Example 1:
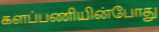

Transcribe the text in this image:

களப்பணியின்போது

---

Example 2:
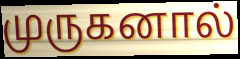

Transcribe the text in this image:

முருகனால்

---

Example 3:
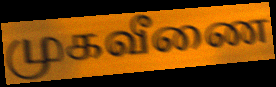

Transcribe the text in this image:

முகவீணை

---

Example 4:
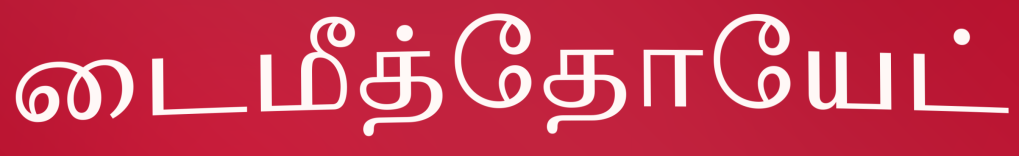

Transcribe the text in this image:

டைமீத்தோயேட்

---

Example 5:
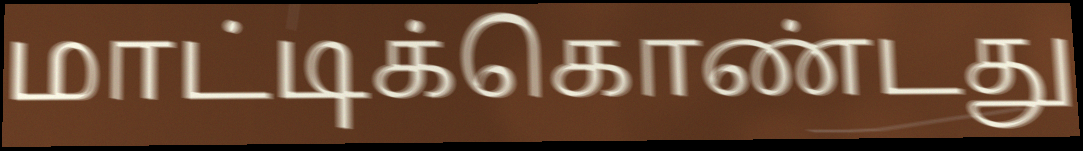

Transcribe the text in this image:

மாட்டிக்கொண்டது